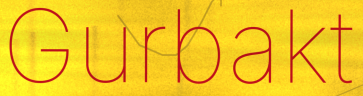
Gurbakt